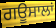
ਗਊਸਾਲਾਂ